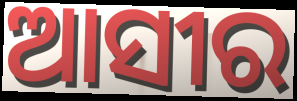
ଆସୀର